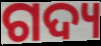
ଗଦ୍ୟ